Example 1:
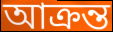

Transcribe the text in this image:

আক্রন্ত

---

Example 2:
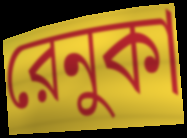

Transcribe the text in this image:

রেনুকা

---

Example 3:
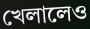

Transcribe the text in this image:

খেলালেও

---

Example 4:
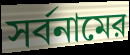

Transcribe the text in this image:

সর্বনামের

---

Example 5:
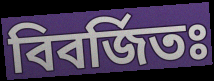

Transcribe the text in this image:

বিবর্জিতঃ